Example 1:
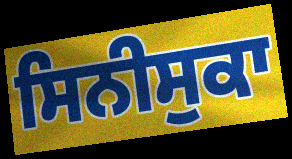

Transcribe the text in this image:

ਸਿਨੀਸੁਕਾ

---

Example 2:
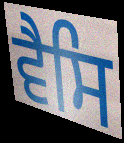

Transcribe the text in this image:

ਵੈਸਿ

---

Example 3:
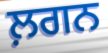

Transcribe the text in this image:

ਲ਼ਗਨ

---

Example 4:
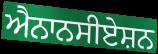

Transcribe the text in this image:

ਐਨਾਨਸੀਏਸ਼ਨ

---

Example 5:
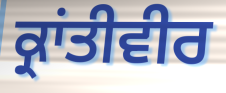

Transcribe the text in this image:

ਕ੍ਰਾਂਤੀਵੀਰ